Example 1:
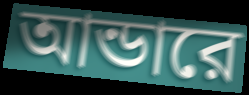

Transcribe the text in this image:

আন্ডারে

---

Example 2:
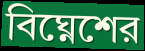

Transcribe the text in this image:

বিঘ্নেশের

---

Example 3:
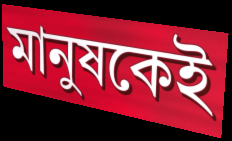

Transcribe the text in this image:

মানুষকেই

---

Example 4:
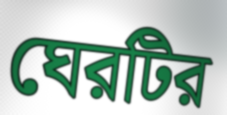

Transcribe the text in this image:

ঘেরটির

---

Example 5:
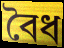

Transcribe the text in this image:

বৈধ